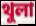
থুলা